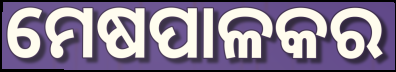
ମେଷପାଳକର